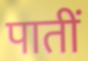
पातीं